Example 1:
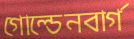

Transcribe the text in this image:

গোল্ডেনবার্গ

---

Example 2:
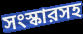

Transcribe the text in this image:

সংস্কারসহ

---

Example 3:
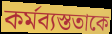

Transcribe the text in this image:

কর্মব্যস্ততাকে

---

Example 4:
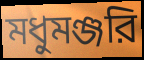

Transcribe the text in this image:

মধুমঞ্জরি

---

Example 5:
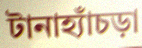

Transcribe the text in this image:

টানাহ্যাঁচড়া